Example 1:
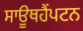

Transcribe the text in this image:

ਸਾਊਥਹੈਂਪਟਨ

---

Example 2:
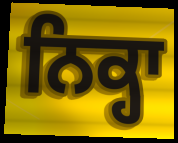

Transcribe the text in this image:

ਨਿਕ੍ਹਾ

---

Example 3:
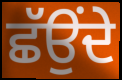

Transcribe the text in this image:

ਛੱਉਂਦੇ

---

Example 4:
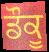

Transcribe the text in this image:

ਡੌਕੂ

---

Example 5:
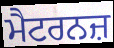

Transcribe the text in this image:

ਮੈਟਰਨਜ਼